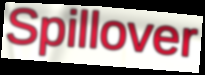
Spillover